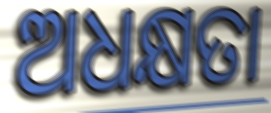
ଅଧକ୍ଷତା